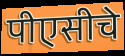
पीएसीचे